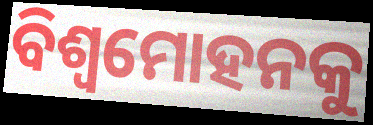
ବିଶ୍ଵମୋହନକୁ